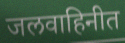
जलवाहिनीत